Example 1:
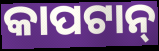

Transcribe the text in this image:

କାପଟାନ୍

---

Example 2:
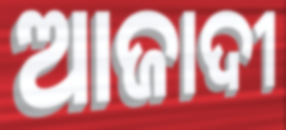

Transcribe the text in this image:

ଆଜାଦୀ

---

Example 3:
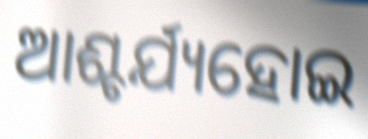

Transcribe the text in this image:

ଆଶ୍ଚର୍ଯ୍ୟହୋଇ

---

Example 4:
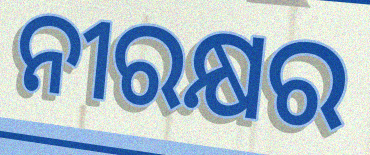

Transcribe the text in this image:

ନୀରକ୍ଷର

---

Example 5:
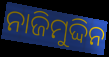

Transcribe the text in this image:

ନାଜିମୁଦ୍ଦିନ